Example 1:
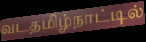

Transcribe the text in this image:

வடதமிழ்நாட்டில்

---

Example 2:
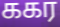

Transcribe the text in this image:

ககர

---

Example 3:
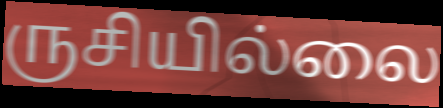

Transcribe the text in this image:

ருசியில்லை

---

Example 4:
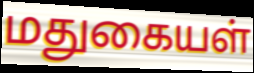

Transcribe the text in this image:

மதுகையள்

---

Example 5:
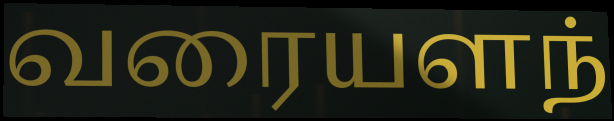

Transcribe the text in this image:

வரையளந்